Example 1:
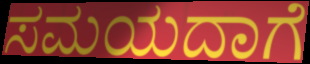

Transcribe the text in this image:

ಸಮಯದಾಗೆ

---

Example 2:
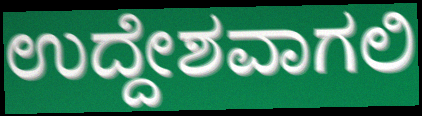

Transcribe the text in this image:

ಉದ್ದೇಶವಾಗಲಿ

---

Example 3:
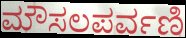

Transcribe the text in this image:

ಮೌಸಲಪರ್ವಣಿ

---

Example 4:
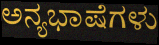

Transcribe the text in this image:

ಅನ್ಯಭಾಷೆಗಳು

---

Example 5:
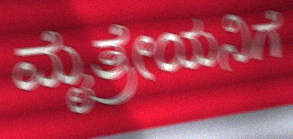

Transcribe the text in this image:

ಮೈತ್ರೇಯನಿಗೆ